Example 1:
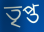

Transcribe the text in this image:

তৃপ্ত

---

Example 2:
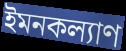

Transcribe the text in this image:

ইমনকল্যাণ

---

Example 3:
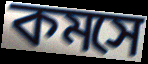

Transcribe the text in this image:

কমসে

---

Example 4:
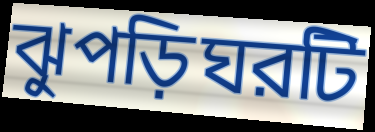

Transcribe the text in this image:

ঝুপড়িঘরটি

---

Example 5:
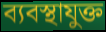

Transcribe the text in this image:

ব্যবস্থাযুক্ত